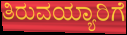
ತಿರುವಯ್ಯಾರಿಗೆ